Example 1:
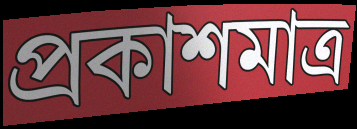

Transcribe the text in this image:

প্রকাশমাত্র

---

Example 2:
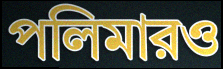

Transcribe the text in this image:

পলিমারও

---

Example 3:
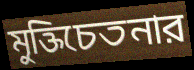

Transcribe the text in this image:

মুক্তিচেতনার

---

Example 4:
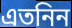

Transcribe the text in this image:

এতনিন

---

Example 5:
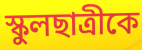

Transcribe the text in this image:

স্কুলছাত্রীকে